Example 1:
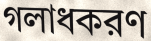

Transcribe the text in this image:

গলাধকরণ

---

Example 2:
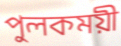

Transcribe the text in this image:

পুলকময়ী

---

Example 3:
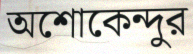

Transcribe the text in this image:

অশোকেন্দুর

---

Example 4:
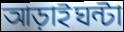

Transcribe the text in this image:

আড়াইঘন্টা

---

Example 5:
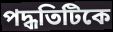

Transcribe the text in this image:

পদ্ধতিটিকে